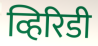
व्हिरिडी